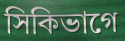
সিকিভাগে